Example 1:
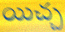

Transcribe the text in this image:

యిచ్చ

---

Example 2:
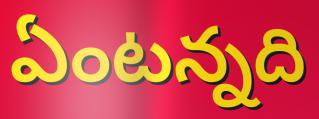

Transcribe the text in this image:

ఏంటన్నది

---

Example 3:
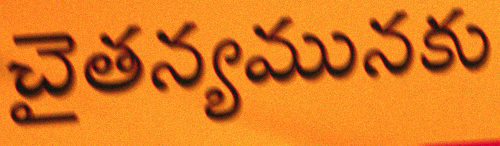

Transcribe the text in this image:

చైతన్యమునకు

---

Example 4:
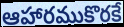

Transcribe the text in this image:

ఆహారముకొరకే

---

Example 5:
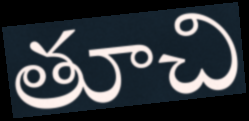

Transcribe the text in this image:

తూచి